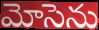
మోసెను